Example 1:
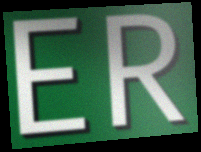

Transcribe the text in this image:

ER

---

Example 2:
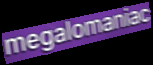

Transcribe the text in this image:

megalomaniac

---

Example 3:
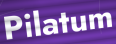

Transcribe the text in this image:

Pilatum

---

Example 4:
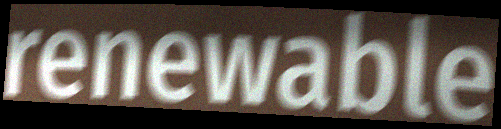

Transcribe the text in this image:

renewable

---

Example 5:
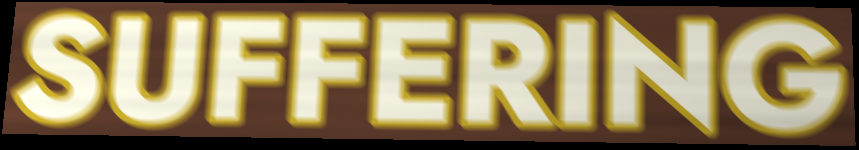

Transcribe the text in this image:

SUFFERING